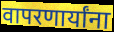
वापरणार्यांना